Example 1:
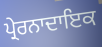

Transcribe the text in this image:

ਪ੍ਰੇਰਨਾਦਾਇਕ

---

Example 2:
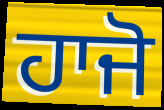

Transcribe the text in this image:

ਹਾਜੋ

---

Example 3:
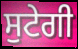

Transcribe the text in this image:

ਸੁਟੇਗੀ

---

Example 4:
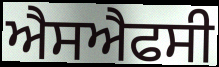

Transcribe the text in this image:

ਐਸਐਫਸੀ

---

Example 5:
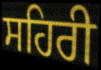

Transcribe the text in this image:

ਸਹਿਰੀ